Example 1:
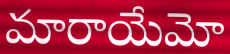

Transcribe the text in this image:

మారాయేమో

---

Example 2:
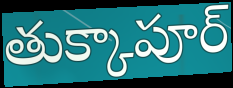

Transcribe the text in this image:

తుక్కాపూర్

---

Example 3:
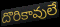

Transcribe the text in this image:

దొరికావులే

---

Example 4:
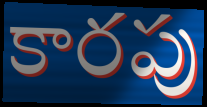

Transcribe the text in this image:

కారపు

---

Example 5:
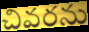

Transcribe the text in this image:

చివరను